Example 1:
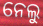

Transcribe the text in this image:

ନେଲୁ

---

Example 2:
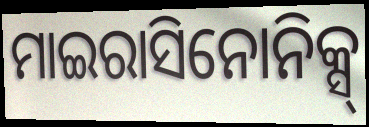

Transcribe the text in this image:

ମାଇରାସିନୋନିକ୍ସ୍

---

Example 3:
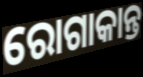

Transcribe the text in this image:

ରୋଗାକାନ୍ତ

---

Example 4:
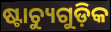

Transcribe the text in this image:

ଷ୍ଟାଚ୍ୟୁଗୁଡ଼ିକ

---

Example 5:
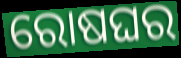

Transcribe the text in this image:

ରୋଷଘର